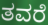
ತವರೆ